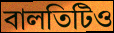
বালতিটিও